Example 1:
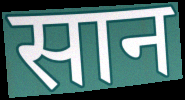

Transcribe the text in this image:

सान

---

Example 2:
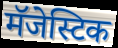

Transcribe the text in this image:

मॅजेस्टिक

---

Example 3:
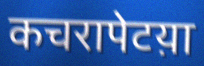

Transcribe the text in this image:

कचरापेटय़ा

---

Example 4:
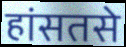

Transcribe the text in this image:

हांसतसे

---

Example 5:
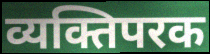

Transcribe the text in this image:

व्यक्तिपरक